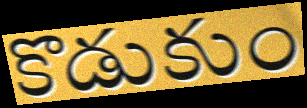
కొడుకుం